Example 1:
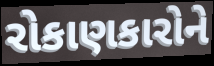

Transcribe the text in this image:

રોકાણકારોને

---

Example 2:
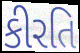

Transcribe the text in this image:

કીરતિ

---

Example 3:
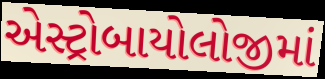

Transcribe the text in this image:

એસ્ટ્રોબાયોલોજીમાં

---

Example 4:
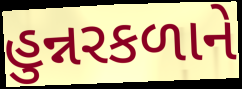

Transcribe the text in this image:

હુન્નરકળાને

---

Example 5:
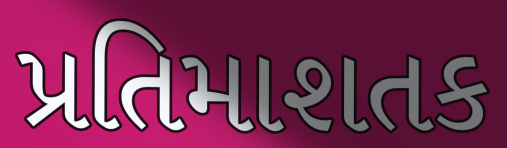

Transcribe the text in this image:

પ્રતિમાશતક